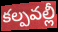
కల్పవల్లీ